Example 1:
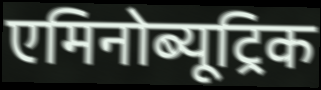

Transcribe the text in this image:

एमिनोब्यूट्रिक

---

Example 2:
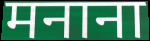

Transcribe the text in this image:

मनाना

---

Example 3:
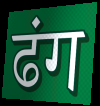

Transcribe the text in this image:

ढंग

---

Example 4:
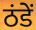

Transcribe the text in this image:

ठंडें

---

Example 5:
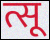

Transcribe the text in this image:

त्सू